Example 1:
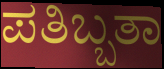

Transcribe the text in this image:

ಪತಿಬ್ಬತಾ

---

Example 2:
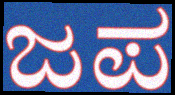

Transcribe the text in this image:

ಜಪ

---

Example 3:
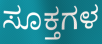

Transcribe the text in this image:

ಸೂಕ್ತಗಳ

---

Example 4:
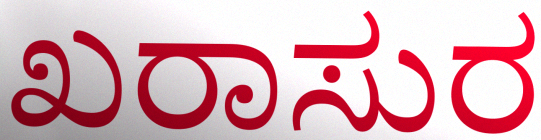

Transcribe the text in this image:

ಖರಾಸುರ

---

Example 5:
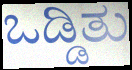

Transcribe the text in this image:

ಒಡ್ಡಿತು